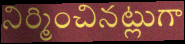
నిర్మించినట్లుగా